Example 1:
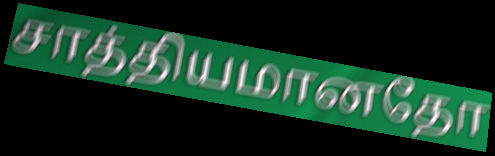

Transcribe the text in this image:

சாத்தியமானதோ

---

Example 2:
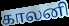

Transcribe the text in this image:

காலனி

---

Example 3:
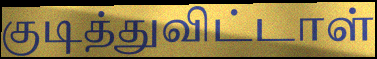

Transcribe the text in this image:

குடித்துவிட்டாள்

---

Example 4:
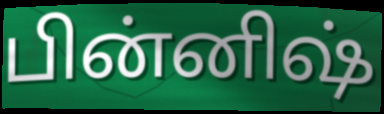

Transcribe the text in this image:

பின்னிஷ்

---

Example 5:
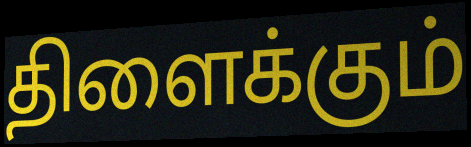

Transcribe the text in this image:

திளைக்கும்